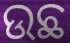
ଉଛ